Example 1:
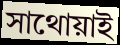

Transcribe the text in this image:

সাথোয়াই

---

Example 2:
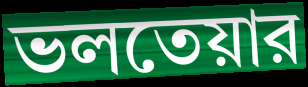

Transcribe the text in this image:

ভলতেয়ার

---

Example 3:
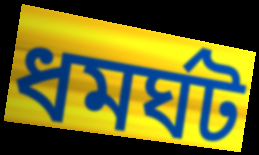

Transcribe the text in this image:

ধমর্ঘট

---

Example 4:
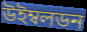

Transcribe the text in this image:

উইম্বলডন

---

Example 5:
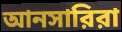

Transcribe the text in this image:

আনসারিরা